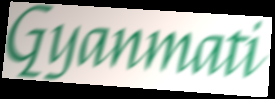
Gyanmati